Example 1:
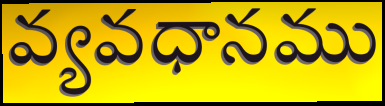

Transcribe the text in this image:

వ్యవధానము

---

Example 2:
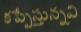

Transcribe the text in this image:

కప్పేస్తున్నవి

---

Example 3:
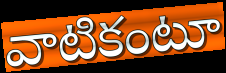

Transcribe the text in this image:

వాటికంటూ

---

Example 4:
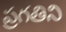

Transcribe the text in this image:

ప్రగతిని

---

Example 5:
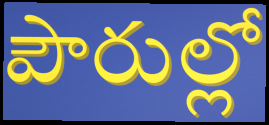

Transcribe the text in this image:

పౌరుల్లో